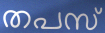
തപസ്